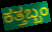
ಕತ್ತಬ್ಬಂ